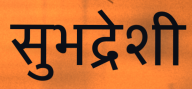
सुभद्रेशी